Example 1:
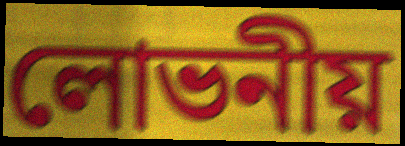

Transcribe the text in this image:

লোভনীয়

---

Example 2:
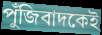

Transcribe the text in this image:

পুঁজিবাদকেই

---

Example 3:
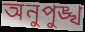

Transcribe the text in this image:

অনুপুঙ্খ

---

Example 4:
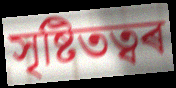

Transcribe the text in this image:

সৃষ্টিতত্বৰ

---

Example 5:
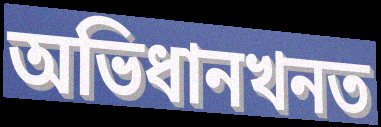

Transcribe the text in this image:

অভিধানখনত